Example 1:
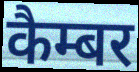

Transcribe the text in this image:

कैम्बर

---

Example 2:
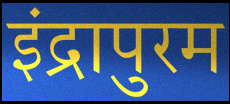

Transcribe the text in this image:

इंद्रापुरम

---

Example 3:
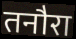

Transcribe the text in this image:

तनौरा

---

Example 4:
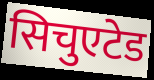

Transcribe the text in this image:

सिचुएटेड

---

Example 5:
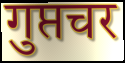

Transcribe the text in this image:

गुप्तचर